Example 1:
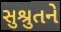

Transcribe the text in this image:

સુશ્રુતને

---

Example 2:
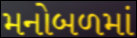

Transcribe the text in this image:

મનોબળમાં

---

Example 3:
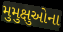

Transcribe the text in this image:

મુમુક્ષુઓના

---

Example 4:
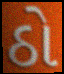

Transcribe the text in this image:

ઠો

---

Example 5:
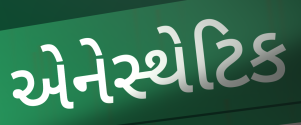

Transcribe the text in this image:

એનેસ્થેટિક